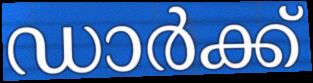
ഡാർക്ക്